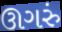
ઊગરું